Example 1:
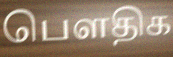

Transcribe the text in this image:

பெளதிக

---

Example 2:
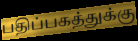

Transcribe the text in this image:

பதிப்பகத்துக்கு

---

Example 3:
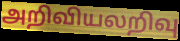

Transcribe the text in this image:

அறிவியலறிவு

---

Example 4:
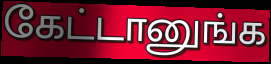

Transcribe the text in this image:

கேட்டானுங்க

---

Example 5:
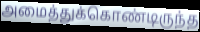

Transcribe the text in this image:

அமைத்துக்கொண்டிருந்த